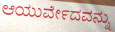
ಆಯುರ್ವೇದವನ್ನು